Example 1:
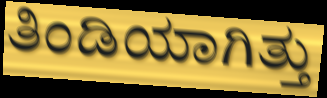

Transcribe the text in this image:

ತಿಂಡಿಯಾಗಿತ್ತು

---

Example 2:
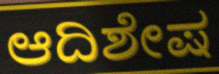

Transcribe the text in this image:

ಆದಿಶೇಷ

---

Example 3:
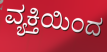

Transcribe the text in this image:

ವ್ಯಕ್ತಿಯಿಂದ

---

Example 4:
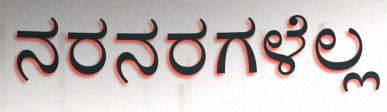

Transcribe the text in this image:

ನರನರಗಳೆಲ್ಲ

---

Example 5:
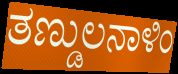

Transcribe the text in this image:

ತಣ್ಡುಲನಾಳಿಂ